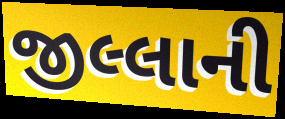
જીલ્લાની